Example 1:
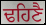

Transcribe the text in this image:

ਢਹਿਣੈ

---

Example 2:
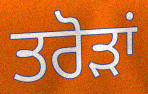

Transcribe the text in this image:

ਤਰੋੜਾਂ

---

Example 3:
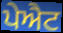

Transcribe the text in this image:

ਪੇਐਟ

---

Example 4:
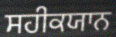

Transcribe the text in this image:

ਸਹੀਕਯਾਨ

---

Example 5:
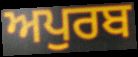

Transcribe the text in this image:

ਅਪੁਰਬ